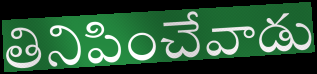
తినిపించేవాడు